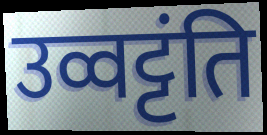
उव्वट्टंति